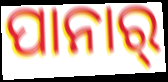
ପାନାର୍